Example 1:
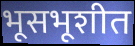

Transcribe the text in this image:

भूसभूशीत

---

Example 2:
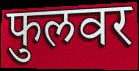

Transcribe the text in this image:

फुलवर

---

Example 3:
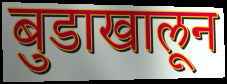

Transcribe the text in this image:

बुडाखालून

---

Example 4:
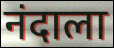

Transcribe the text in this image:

नंदाला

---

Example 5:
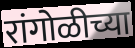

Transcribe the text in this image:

रांगोळीच्या